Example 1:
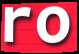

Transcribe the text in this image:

ro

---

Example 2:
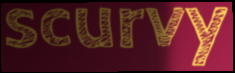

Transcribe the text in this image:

scurvy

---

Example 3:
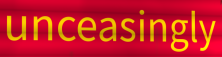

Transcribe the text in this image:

unceasingly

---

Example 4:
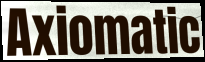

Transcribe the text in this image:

Axiomatic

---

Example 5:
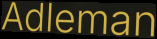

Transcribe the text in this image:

Adleman